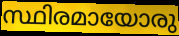
സ്ഥിരമായോരു